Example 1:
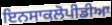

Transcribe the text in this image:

ਇਨਸਾਕਲੋਪੀਡੀਆ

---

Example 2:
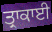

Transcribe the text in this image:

ਤ੍ਰਾਕਾਈ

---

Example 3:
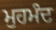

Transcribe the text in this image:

ਮੁਹਮੰਦ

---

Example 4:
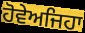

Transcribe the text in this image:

ਹੋਵੇਅਜਿਹਾ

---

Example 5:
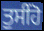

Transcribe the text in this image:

ਤੁਸੀਂਹੋ